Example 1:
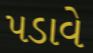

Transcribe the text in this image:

પડાવે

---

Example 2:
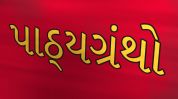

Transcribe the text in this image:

પાઠ્યગ્રંથો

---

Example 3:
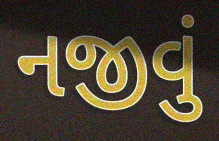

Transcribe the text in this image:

નજીવું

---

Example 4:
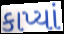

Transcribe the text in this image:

કાપ્યાં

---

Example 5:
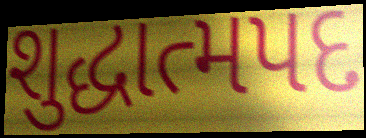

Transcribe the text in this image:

શુદ્ધાત્મપદ